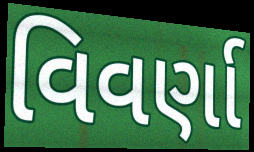
વિવર્ણા